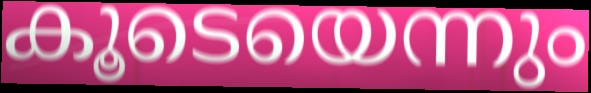
കൂടെയെന്നും